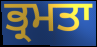
ਭ੍ਰਮਤਾ